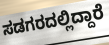
ಸಡಗರದಲ್ಲಿದ್ದಾರೆ